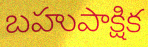
బహుపాక్షిక